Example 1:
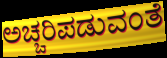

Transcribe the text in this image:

ಅಚ್ಚರಿಪಡುವಂತೆ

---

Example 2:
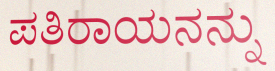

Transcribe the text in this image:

ಪತಿರಾಯನನ್ನು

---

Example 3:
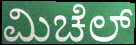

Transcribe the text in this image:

ಮಿಚೆಲ್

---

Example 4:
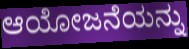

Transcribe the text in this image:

ಆಯೋಜನೆಯನ್ನು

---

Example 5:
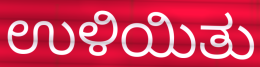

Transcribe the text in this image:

ಉಳಿಯಿತು